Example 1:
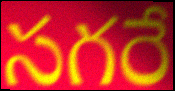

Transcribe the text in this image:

సగరే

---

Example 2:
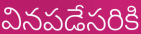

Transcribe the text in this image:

వినపడేసరికి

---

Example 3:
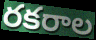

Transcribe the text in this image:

రకరాల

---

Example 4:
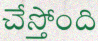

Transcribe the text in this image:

చేస్తోంది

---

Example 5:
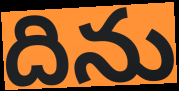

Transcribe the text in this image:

దిను